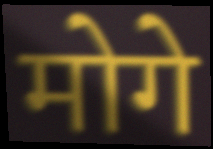
मोगे